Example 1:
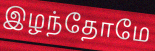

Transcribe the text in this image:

இழந்தோமே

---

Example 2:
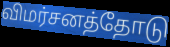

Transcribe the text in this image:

விமர்சனத்தோடு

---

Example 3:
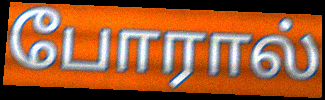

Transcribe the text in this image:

போரால்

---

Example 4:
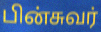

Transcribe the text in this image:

பின்சுவர்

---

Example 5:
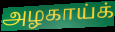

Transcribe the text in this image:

அழகாய்க்